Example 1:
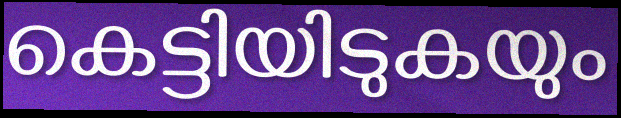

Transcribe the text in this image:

കെട്ടിയിടുകയും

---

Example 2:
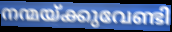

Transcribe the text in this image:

നന്മയ്ക്കുവേണ്ടി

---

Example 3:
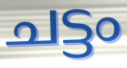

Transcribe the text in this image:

ചട്ടം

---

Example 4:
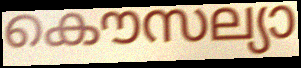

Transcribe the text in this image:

കൌസല്യാ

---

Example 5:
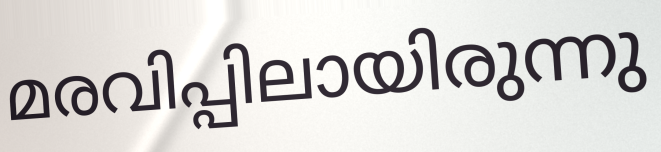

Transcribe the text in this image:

മരവിപ്പിലായിരുന്നു